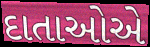
દાતાઓએ